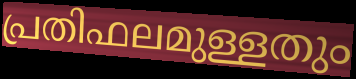
പ്രതിഫലമുള്ളതും